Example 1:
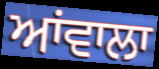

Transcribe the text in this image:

ਆਂਵਾਲਾ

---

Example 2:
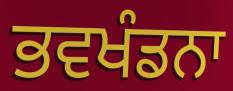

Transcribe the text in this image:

ਭਵਖੰਡਨਾ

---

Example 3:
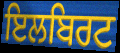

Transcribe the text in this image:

ਇਲਬਿਰਟ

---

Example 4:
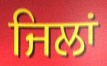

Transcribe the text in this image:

ਜਿਲਾਂ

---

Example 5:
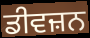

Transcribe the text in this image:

ਡੀਵਜ਼ਨ